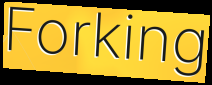
Forking